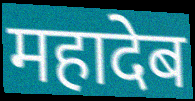
महादेब